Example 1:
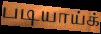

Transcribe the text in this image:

படியாய்க்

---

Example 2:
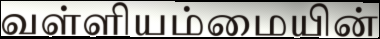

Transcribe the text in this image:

வள்ளியம்மையின்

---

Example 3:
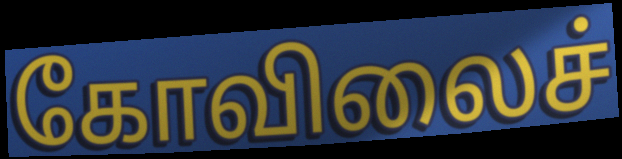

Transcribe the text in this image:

கோவிலைச்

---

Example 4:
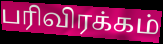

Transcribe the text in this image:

பரிவிரக்கம்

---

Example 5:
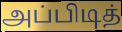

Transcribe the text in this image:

அப்பிடித்